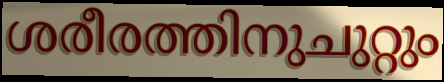
ശരീരത്തിനുചുറ്റും